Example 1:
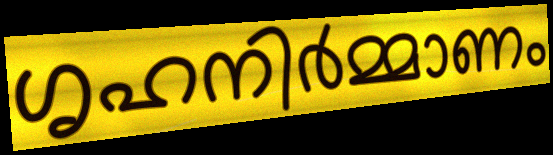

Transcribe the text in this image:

ഗൃഹനിർമ്മാണം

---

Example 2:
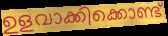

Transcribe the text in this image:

ഉളവാക്കിക്കൊണ്ട്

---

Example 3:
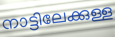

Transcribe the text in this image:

നാട്ടിലേക്കുള്ള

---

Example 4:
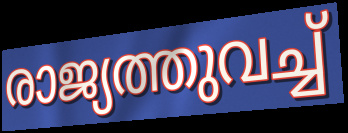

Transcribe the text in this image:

രാജ്യത്തുവച്ച്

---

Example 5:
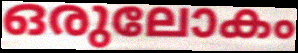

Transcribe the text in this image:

ഒരുലോകം